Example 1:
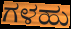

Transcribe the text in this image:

ಗಳಹು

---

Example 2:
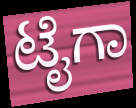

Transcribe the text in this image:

ಟೈಗಾ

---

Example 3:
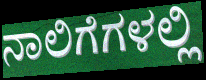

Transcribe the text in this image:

ನಾಲಿಗೆಗಳಲ್ಲಿ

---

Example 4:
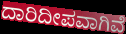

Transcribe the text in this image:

ದಾರಿದೀಪವಾಗಿವೆ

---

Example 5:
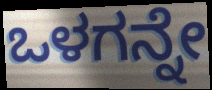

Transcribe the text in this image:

ಒಳಗನ್ನೇ